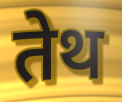
तेथ